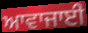
ਆਵਾਜਾਈ